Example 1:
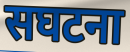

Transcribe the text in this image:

सघटना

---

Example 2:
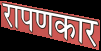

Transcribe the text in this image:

रापणकार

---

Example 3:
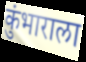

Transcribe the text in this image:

कुंभाराला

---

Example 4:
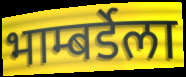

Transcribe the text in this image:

भाम्बर्डेला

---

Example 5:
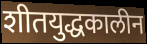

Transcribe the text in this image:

शीतयुद्धकालीन